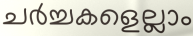
ചർച്ചകളെല്ലാം